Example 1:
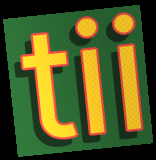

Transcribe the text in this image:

tii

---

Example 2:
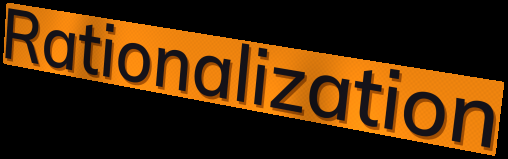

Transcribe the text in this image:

Rationalization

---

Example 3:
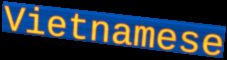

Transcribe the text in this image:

Vietnamese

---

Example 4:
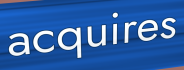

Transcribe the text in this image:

acquires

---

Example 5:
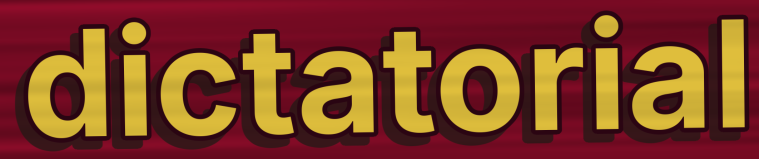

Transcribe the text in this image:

dictatorial